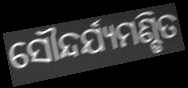
ସୌନ୍ଦର୍ଯ୍ୟମଣ୍ଡିତ